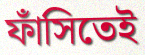
ফাঁসিতেই